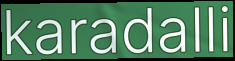
karadalli